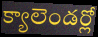
క్యాలెండర్లో